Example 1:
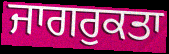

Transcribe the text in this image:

ਜਾਗਰੁਕਤਾ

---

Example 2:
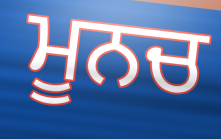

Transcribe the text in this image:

ਮੂਨਚ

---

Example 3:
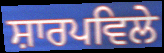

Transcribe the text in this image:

ਸ਼ਾਰਪਵਿਲੇ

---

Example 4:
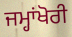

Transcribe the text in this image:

ਜਮ੍ਹਾਂਖੋਰੀ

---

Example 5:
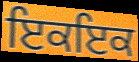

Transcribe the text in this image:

ਇਕਇਕ